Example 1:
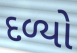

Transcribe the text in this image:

દળ્યો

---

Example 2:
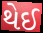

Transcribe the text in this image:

થેઈ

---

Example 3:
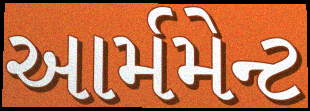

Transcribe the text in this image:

આર્મમેન્ટ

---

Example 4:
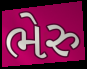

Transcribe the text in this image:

ભેરુ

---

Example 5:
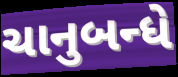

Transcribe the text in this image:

ચાનુબન્ધે